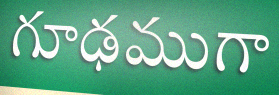
గూఢముగా